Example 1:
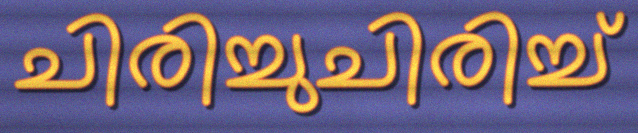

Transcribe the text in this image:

ചിരിച്ചുചിരിച്ച്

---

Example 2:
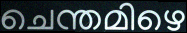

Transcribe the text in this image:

ചെന്തമിഴെ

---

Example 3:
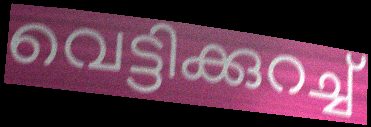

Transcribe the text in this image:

വെട്ടിക്കുറച്ച്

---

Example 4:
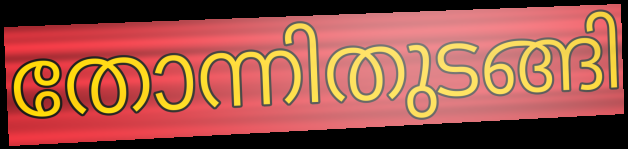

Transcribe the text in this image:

തോന്നിതുടങ്ങി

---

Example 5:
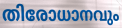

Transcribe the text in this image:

തിരോധാനവും